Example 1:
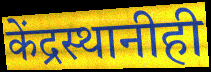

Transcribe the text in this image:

केंद्रस्थानीही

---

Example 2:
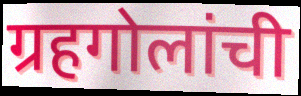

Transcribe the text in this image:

ग्रहगोलांची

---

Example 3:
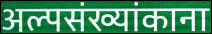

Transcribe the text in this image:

अल्पसंख्यांकाना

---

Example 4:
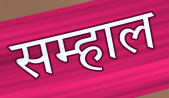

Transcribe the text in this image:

सम्हाल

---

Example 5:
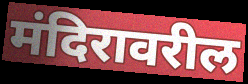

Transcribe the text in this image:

मंदिरावरील